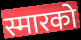
स्मारको